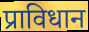
प्राविधान